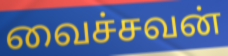
வைச்சவன்